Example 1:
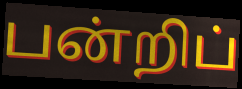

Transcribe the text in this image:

பன்றிப்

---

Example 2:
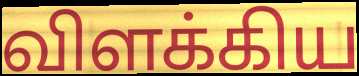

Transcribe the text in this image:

விளக்கிய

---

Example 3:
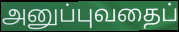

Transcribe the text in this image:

அனுப்புவதைப்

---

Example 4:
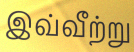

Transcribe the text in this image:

இவ்வீற்று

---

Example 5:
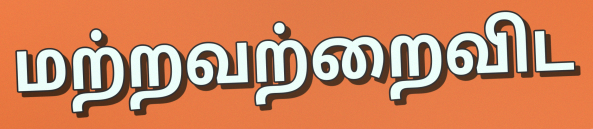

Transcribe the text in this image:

மற்றவற்றைவிட